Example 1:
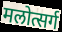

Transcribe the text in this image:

मलोत्सर्ग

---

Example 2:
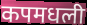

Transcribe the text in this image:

कपमधली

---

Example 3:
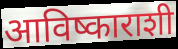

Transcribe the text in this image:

आविष्काराशी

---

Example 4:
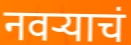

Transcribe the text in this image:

नवर्‍याचं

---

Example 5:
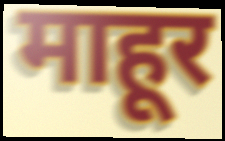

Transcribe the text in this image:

माहूर